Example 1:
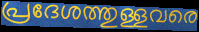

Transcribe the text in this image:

പ്രദേശത്തുള്ളവരെ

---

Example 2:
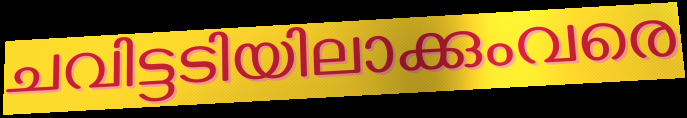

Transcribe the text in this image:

ചവിട്ടടിയിലാക്കുംവരെ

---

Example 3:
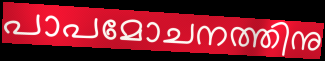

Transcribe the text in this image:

പാപമോചനത്തിനു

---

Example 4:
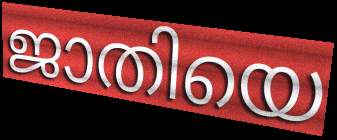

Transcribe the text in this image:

ജാതിയെ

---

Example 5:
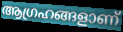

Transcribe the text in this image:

ആഗ്രഹങ്ങളാണ്